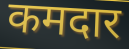
कमदार